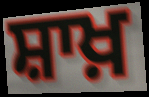
ਸ਼ਾਖ਼